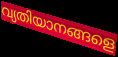
വ്യതിയാനങ്ങളെ